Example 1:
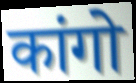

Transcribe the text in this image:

कांगो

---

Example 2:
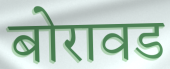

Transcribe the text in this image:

बोरावड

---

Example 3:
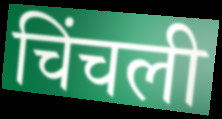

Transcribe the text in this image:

चिंचली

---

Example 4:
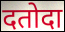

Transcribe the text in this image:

दतोदा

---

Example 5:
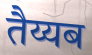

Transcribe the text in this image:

तैय्यब